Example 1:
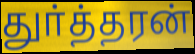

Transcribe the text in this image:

துர்த்தரன்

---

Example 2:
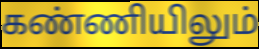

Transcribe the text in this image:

கண்ணியிலும்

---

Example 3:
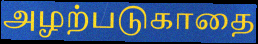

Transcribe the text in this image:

அழற்படுகாதை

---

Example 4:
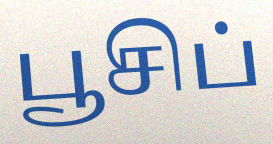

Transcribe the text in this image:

பூசிப்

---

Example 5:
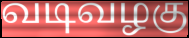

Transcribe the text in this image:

வடிவழகு